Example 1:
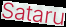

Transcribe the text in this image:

Sataru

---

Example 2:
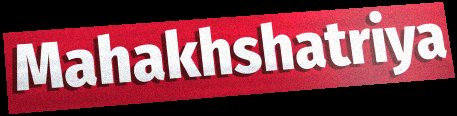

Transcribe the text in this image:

Mahakhshatriya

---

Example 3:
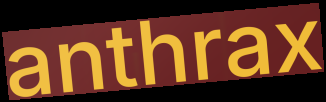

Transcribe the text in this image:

anthrax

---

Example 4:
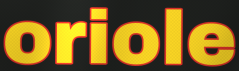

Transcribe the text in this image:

oriole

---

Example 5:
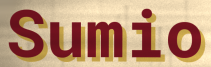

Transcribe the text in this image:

Sumio